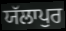
ਯੱਲਾਪੁਰ